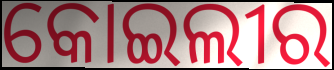
କୋଇଲୀର